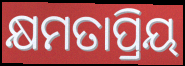
କ୍ଷମତାପ୍ରିୟ